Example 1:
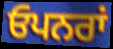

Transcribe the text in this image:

ਓਪਨਰਾਂ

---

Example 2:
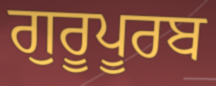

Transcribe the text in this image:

ਗੁਰੂਪੂਰਬ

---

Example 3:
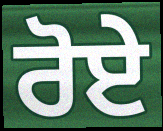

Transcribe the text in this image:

ਰੋਏ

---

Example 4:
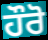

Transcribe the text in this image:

ਹੌਰੋ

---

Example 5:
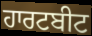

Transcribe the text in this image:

ਹਾਰਟਬੀਟ